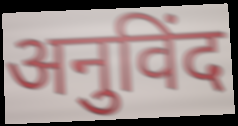
अनुविंद